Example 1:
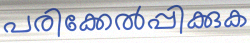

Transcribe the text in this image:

പരിക്കേൽപ്പിക്കുക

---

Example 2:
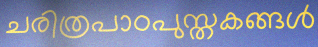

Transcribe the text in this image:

ചരിത്രപാഠപുസ്തകങ്ങൾ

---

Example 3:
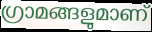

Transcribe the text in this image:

ഗ്രാമങ്ങളുമാണ്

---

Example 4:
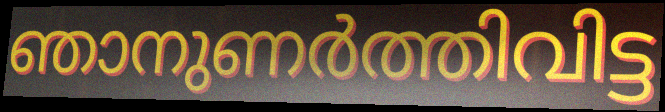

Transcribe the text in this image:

ഞാനുണർത്തിവിട്ട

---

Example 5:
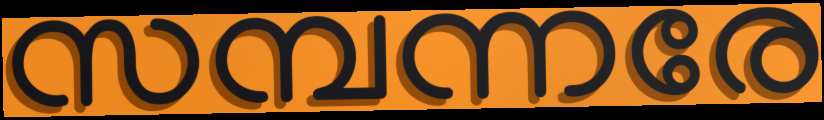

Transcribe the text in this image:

സമ്പന്നരേ